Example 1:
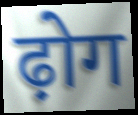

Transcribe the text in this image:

ढ़ोग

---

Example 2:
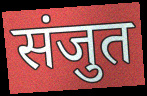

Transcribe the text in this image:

संजुत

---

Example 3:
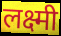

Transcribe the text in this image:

लक्ष्‍मी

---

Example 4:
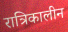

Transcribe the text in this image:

रात्रिकालीन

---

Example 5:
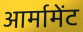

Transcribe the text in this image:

आर्मामेंट